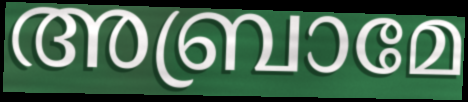
അബ്രാമേ